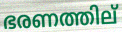
ഭരണത്തില്